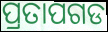
ପ୍ରତାପଗଡ